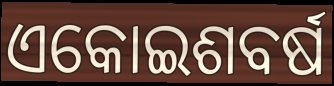
ଏକୋଇଶବର୍ଷ